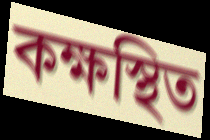
কক্ষস্থিত